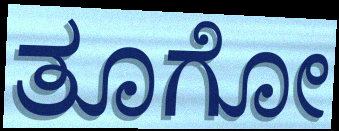
ತೂಗೋ